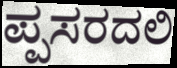
ಪ್ಪಸರದಲಿ